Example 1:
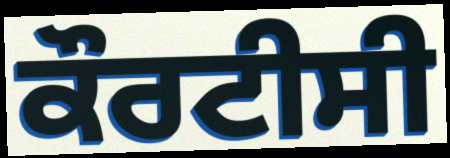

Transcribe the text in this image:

ਕੌਰਟੀਸੀ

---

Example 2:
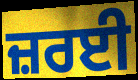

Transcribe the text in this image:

ਜ਼ਰਈ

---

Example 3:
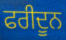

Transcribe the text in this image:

ਫਰੀਦੂਨ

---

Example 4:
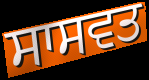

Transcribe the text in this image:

ਸਾਸਵਤ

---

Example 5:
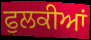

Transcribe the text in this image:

ਫੁਲਕੀਆਂ